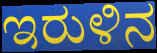
ಇರುಳಿನ